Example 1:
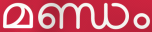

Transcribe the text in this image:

മണ്ഡം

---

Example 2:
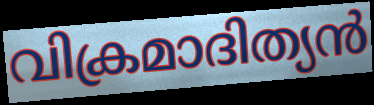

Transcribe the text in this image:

വിക്രമാദിത്യൻ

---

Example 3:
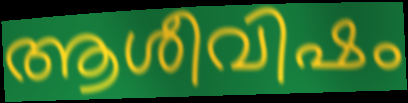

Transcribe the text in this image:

ആശീവിഷം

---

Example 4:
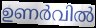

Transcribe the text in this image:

ഉണർവിൽ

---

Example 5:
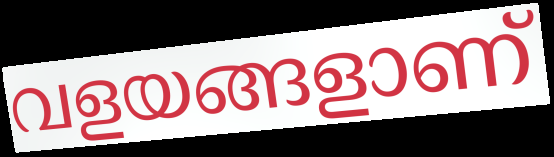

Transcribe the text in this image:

വളയങ്ങളാണ്